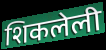
शिकलेली